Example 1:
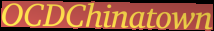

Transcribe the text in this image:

OCDChinatown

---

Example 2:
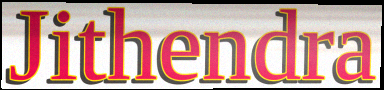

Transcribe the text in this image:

Jithendra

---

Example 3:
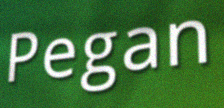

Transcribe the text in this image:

Pegan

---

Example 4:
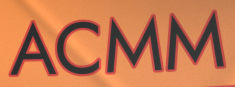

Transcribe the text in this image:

ACMM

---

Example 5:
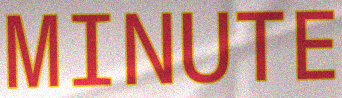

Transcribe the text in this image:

MINUTE